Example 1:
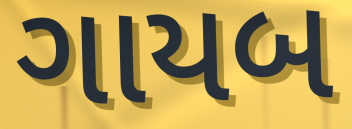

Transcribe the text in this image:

ગાયબ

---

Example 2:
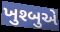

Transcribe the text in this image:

ખુશ્બુએ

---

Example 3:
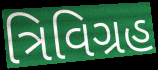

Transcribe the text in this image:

ત્રિવિગ્રહ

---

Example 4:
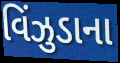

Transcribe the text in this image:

વિંઝુડાના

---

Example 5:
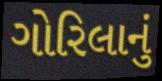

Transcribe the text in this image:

ગોરિલાનું